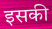
इसकी